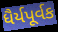
ધૈર્યપૂર્વક